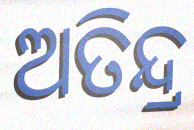
ଅତିନ୍ଦ୍ର